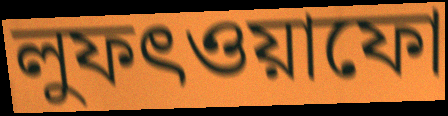
লুফৎওয়াফো